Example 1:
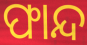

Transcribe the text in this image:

ଫାନ୍ଦ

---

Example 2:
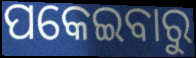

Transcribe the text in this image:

ପକେଇବାରୁ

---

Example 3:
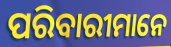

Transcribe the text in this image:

ପରିବାରୀମାନେ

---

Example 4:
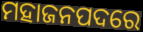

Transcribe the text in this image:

ମହାଜନପଦରେ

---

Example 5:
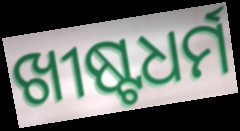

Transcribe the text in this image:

ଖୀଷ୍ଟଧର୍ମ